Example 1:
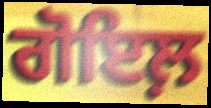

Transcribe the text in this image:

ਗੋਇਲ਼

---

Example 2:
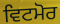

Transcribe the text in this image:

ਵਿਟਮੋਰ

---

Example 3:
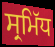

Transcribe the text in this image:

ਸ੍ਰਮਿੱਧ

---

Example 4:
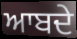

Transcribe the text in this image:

ਆਬਦੇ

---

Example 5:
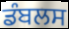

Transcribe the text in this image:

ਡੰਬਲਸ